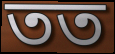
তত